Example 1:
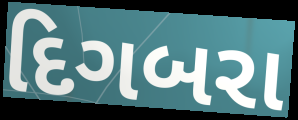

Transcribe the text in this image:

દિગબરા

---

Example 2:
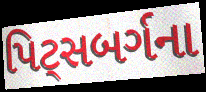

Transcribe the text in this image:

પિટ્સબર્ગના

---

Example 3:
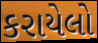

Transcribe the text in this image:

કરાયેલો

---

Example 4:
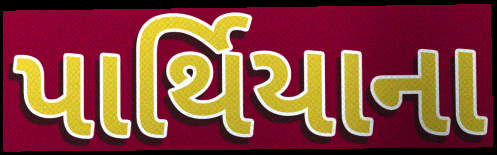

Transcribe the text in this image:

પાર્થિયાના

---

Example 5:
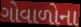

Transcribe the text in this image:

ગોવાળોના